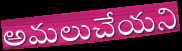
అమలుచేయని